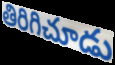
తిరిగిచూడు